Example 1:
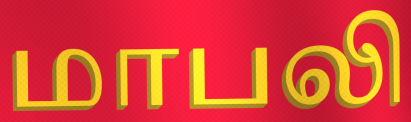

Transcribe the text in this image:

மாபலி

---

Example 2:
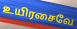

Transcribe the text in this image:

உயிரசைவே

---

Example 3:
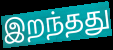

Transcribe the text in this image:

இறந்தது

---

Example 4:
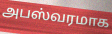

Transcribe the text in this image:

அபஸ்வரமாக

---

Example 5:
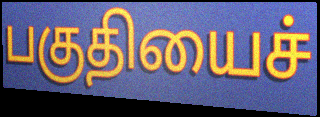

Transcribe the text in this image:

பகுதியைச்